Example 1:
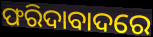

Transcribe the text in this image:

ଫରିଦାବାଦରେ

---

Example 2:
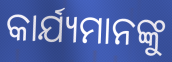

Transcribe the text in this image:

କାର୍ଯ୍ୟମାନଙ୍କୁ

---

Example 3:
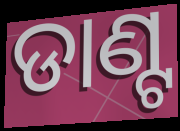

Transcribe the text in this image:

ଡାଣ୍ଟ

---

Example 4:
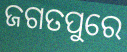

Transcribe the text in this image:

ଜଗତପୁରେ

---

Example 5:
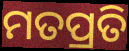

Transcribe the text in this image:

ମତପ୍ରତି